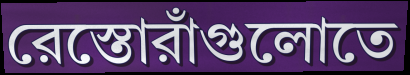
রেস্তোরাঁগুলোতে